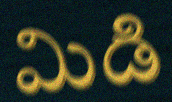
మిడి